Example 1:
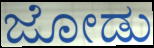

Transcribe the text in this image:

ಜೋಡು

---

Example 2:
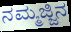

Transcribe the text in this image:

ನಮ್ಮಜ್ಜಿನ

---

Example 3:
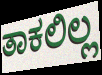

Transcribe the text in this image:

ತಾಕಲಿಲ್ಲ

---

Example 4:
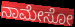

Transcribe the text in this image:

ನಾಮೇಸೋ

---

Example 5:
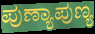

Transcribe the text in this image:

ಪುಣ್ಯಾಪುಣ್ಯ